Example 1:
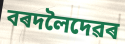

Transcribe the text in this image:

বৰদলৈদেৱৰ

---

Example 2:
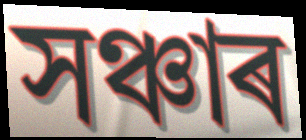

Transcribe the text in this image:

সঞ্চাৰ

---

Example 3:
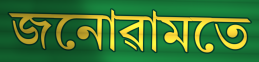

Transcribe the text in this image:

জনোৱামতে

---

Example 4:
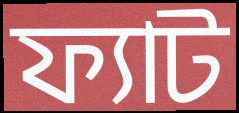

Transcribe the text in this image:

ফ্যাট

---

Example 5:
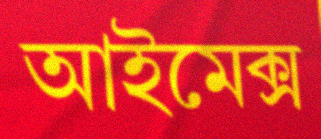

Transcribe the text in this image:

আইমেক্স